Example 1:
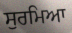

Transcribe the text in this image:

ਸੁਰਮਿਆ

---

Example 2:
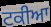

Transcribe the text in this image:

ਟਕੀਆ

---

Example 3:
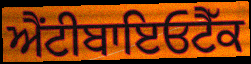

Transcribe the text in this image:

ਐਂਟੀਬਾਇਓਟੈੱਕ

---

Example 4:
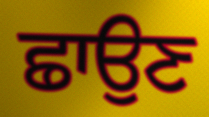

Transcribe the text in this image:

ਛਾਉਣ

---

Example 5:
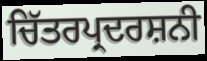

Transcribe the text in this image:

ਚਿੱਤਰਪ੍ਰਦਰਸ਼ਨੀ